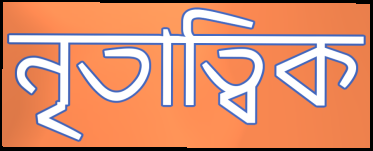
নৃতাত্বিক